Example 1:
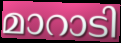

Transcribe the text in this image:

മാറാടി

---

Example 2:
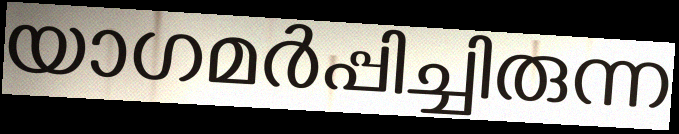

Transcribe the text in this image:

യാഗമർപ്പിച്ചിരുന്ന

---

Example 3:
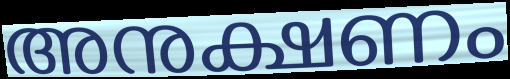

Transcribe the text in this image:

അനുക്ഷണം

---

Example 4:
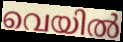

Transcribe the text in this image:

വെയിൽ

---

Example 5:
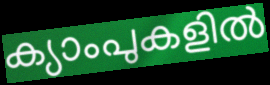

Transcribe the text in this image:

ക്യാംപുകളിൽ